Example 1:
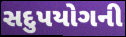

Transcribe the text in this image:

સદુપયોગની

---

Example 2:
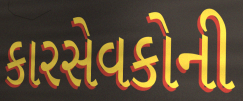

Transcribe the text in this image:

કારસેવકોની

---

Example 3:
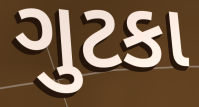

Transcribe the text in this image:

ગુટકા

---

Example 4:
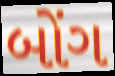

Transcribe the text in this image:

બોંગ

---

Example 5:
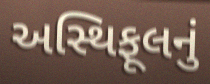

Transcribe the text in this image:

અસ્થિફૂલનું